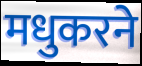
मधुकरने